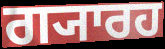
ਗ੍ਯਾਰਹ